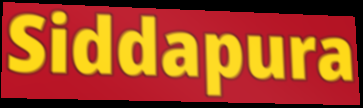
Siddapura